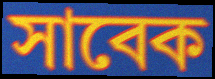
সাবেক